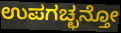
ಉಪಗಚ್ಛನ್ತೋ